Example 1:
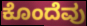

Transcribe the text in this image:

ಕೊಂದೆವು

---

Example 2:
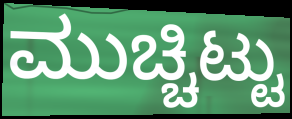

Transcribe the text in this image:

ಮುಚ್ಚಿಟ್ಟು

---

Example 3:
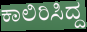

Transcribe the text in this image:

ಕಾಲಿರಿಸಿದ್ದ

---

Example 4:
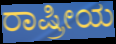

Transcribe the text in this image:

ರಾಷ್ರೀಯ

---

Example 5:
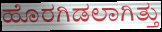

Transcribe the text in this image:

ಹೊರಗಿಡಲಾಗಿತ್ತು